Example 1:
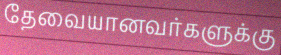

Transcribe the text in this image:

தேவையானவர்களுக்கு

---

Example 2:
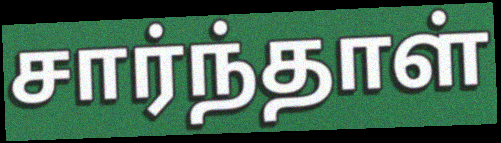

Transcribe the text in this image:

சார்ந்தாள்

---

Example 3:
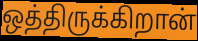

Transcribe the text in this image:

ஒத்திருக்கிறான்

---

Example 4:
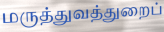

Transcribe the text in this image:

மருத்துவத்துறைப்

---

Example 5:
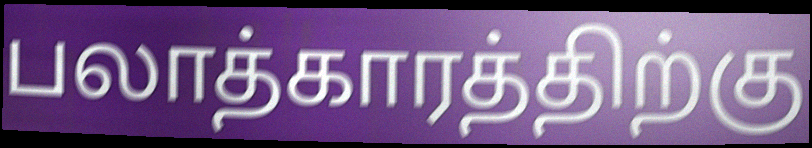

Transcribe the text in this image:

பலாத்காரத்திற்கு